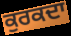
ਕੁਰਕਦਾ